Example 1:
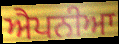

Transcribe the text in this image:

ਐਪਨੀਆ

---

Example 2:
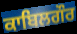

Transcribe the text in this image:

ਕਾਬਿਲਗੌਰ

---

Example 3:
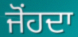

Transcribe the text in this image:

ਜੋਂਹਦਾ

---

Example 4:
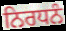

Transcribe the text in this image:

ਨਿਰਧਨੰ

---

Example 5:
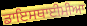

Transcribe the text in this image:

ਡਾਇਸਥਾਈਮੀਆ